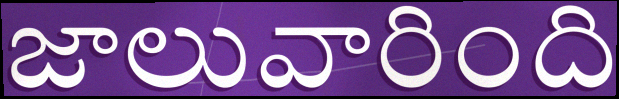
జాలువారింది